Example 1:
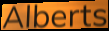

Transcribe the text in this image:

Alberts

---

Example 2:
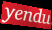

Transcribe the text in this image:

yendu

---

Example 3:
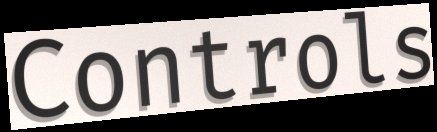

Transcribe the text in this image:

Controls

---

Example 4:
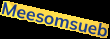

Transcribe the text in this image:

Meesomsueb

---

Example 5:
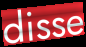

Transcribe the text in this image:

disse